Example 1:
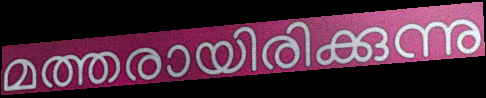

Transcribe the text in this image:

മത്തരായിരിക്കുന്നു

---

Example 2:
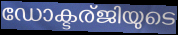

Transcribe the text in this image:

ഡോക്ടര്ജിയുടെ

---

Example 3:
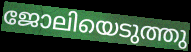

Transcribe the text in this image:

ജോലിയെടുത്തു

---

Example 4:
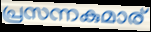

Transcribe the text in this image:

പ്രസന്നകുമാര്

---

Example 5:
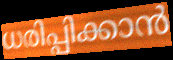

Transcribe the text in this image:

ധരിപ്പിക്കാൻ